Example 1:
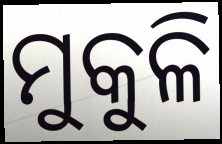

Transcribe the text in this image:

ମୁକୁଳି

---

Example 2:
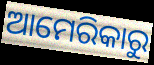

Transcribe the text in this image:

ଆମେରିକାରୁ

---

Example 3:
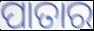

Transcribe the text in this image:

ପାତାର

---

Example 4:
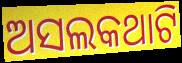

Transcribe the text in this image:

ଅସଲକଥାଟି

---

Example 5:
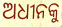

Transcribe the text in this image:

ଅଧୀନକୁ